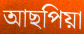
আছপিয়া